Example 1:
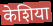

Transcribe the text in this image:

केशिया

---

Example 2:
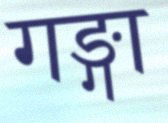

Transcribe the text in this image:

गङ्गा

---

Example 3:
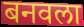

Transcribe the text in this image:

बनवला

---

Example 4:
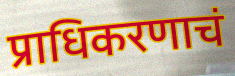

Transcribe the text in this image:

प्राधिकरणाचं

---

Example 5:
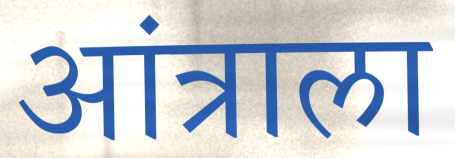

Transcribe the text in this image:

आंत्राला